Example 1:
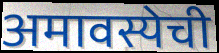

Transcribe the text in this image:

अमावस्येची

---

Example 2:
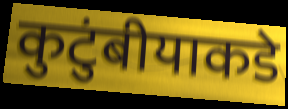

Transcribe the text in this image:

कुटुंबीयाकडे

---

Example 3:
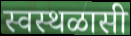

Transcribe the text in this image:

स्वस्थळासी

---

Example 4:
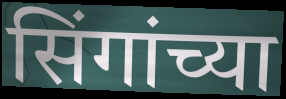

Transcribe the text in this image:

सिंगांच्या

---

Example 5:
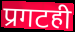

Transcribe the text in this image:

प्रगटही